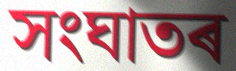
সংঘাতৰ